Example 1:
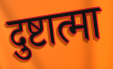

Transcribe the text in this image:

दुष्टात्मा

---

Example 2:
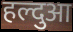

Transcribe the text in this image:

हल्दुआ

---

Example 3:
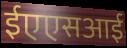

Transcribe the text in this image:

ईएएसआई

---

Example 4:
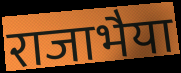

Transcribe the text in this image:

राजाभैया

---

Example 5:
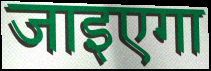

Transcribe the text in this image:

जाइएगा